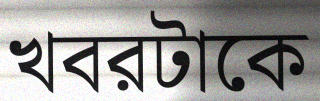
খবরটাকে